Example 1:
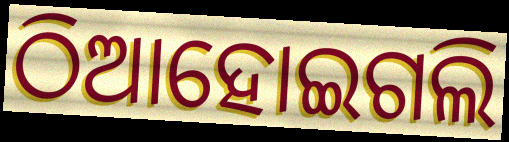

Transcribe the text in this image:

ଠିଆହୋଇଗଲି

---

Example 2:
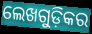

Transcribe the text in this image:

ଲେଖଗୁଡ଼ିକର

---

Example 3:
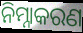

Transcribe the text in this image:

ନିମ୍ନାକରଣ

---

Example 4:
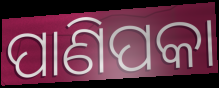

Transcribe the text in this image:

ପାଣିପକା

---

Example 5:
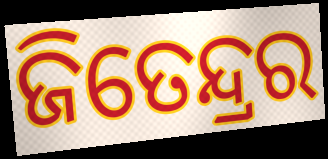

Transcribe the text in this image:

ଜିତେନ୍ଦ୍ରର